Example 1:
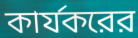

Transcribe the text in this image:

কার্যকরের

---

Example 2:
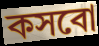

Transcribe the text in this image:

কসবো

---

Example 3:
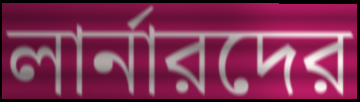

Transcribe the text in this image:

লার্নারদের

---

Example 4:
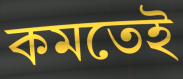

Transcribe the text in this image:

কমতেই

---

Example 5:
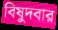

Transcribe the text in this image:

বিষুদবার